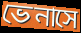
ভেনাসে